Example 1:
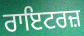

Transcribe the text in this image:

ਰਾਇਟਰਜ਼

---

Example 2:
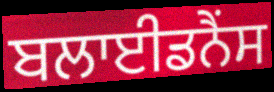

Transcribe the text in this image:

ਬਲਾਈਡਨੈਂਸ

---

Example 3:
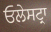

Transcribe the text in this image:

ਓਲੇਸਟ੍ਰਾ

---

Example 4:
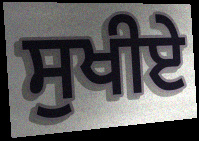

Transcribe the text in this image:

ਸੁਖੀਏ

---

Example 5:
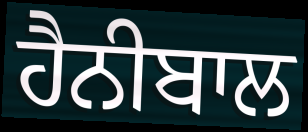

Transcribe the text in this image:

ਹੈਨੀਬਾਲ